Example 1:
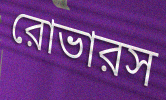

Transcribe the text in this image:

রোভারস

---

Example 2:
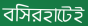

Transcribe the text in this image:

বসিরহাটেই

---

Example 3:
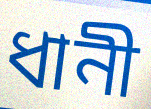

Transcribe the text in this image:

ধানী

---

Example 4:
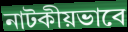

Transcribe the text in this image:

নাটকীয়ভাবে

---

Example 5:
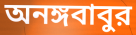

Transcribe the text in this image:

অনঙ্গবাবুর